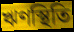
ঋণস্থিতি